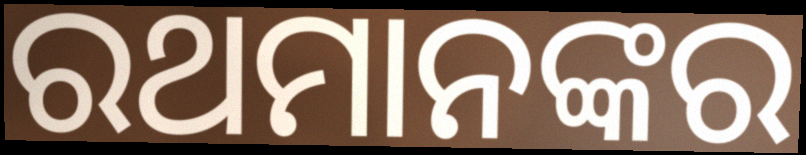
ରଥମାନଙ୍କର